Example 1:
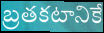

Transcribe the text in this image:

బ్రతకటానికే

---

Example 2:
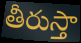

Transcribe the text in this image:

తీరుస్తా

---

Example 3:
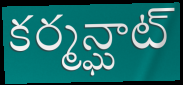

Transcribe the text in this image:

కర్మన్ఘాట్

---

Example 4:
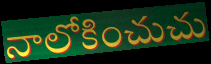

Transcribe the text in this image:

నాలోకించుచు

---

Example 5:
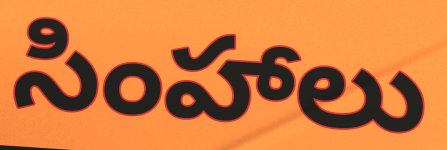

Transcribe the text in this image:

సింహాలు